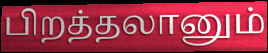
பிறத்தலானும்